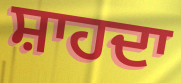
ਸ਼ਾਹਦਾ